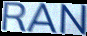
RAN